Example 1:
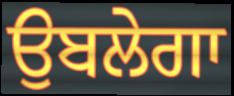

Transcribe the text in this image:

ਉਬਲੇਗਾ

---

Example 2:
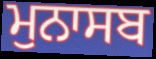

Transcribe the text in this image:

ਮੁਨਾਸਬ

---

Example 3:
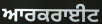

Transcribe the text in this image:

ਆਰਕਰਾਈਟ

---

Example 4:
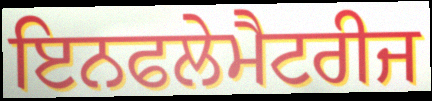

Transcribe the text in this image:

ਇਨਫਲੇਮੈਟਰੀਜ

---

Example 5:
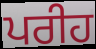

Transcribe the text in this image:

ਪਰੀਹ